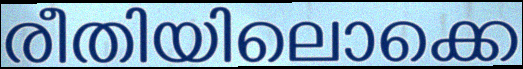
രീതിയിലൊക്കെ